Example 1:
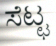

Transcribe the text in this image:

ಸೆಟ್ಟ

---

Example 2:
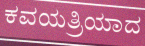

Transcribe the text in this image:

ಕವಯತ್ರಿಯಾದ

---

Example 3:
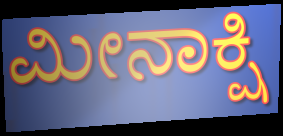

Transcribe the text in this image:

ಮೀನಾಕ್ಷಿ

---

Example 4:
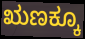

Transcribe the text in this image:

ಋಣಕ್ಕೂ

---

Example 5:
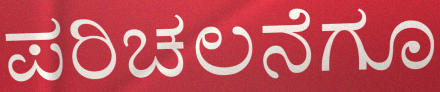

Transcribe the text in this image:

ಪರಿಚಲನೆಗೂ